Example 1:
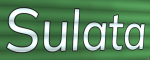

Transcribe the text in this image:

Sulata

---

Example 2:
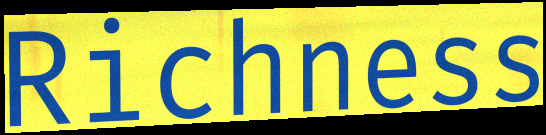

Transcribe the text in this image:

Richness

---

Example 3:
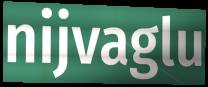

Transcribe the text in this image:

nijvaglu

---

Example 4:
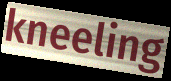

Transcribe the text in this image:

kneeling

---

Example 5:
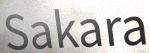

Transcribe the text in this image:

Sakara